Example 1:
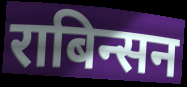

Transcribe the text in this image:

राबिन्सन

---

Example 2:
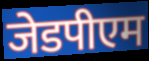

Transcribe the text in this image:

जेडपीएम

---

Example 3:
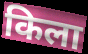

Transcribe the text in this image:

किला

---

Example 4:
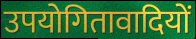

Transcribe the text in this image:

उपयोगितावादियों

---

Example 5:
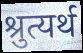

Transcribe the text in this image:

श्रुत्यर्थ